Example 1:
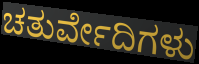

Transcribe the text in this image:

ಚತುರ್ವೇದಿಗಳು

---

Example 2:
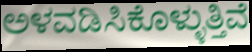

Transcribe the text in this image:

ಅಳವಡಿಸಿಕೊಳ್ಳುತ್ತಿವೆ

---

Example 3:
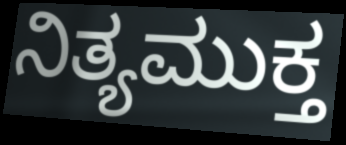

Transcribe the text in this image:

ನಿತ್ಯಮುಕ್ತ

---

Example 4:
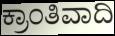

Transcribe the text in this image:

ಕ್ರಾಂತಿವಾದಿ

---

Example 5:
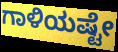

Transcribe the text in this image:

ಗಾಳಿಯಷ್ಟೇ